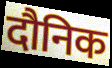
दौनिक